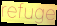
refuge